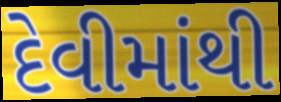
દેવીમાંથી